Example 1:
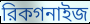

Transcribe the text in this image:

রিকগনাইজ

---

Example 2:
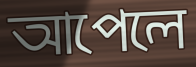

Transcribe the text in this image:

আপেলে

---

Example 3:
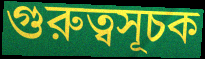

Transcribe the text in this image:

গুরুত্বসূচক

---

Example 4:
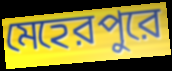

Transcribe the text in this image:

মেহেরপুরে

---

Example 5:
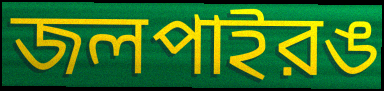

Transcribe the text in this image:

জলপাইরঙ